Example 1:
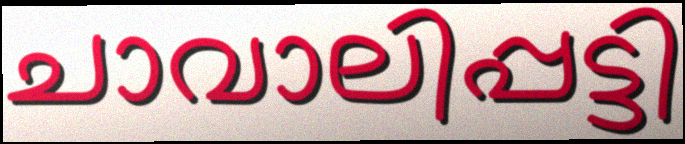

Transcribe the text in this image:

ചാവാലിപ്പട്ടി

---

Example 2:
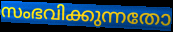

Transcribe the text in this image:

സംഭവിക്കുന്നതോ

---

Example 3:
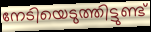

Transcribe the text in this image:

നേടിയെടുത്തിട്ടുണ്ട്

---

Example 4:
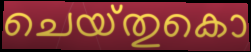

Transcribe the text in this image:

ചെയ്‌തുകൊ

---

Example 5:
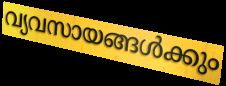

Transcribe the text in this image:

വ്യവസായങ്ങൾക്കും